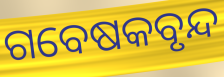
ଗବେଷକବୃନ୍ଦ